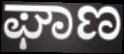
ಘಾಣ